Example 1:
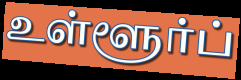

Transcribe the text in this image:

உள்ளூர்ப்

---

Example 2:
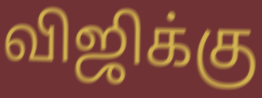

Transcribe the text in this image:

விஜிக்கு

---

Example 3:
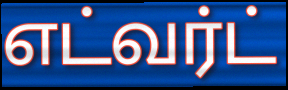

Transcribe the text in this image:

எட்வர்ட்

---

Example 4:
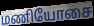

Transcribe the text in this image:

மணியோசை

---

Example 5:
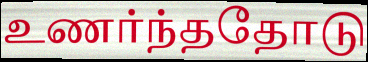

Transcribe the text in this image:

உணர்ந்ததோடு